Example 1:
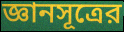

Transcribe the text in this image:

জ্ঞানসূত্রের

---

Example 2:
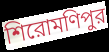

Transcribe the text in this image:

শিরোমণিপুর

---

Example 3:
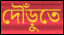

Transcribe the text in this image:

দৌঁড়ুতে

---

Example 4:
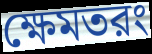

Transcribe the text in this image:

ক্ষেমতরং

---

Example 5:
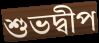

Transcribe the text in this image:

শুভদ্বীপ